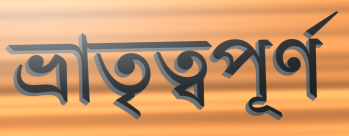
ভ্ৰাতৃত্বপূৰ্ণ